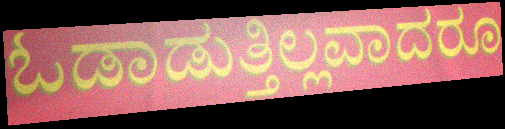
ಓಡಾಡುತ್ತಿಲ್ಲವಾದರೂ